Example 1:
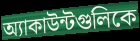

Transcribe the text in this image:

অ্যাকাউন্টগুলিকে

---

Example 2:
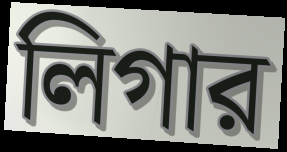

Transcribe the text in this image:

লিগার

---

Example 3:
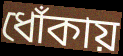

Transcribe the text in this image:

ধোঁকায়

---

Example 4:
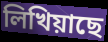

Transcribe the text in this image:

লিখিয়াছে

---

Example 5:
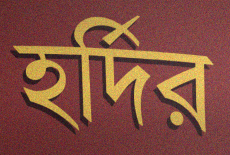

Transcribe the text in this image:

হর্দির